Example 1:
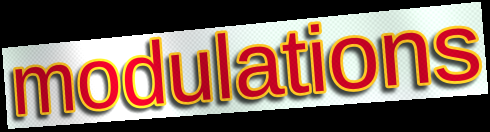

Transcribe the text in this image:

modulations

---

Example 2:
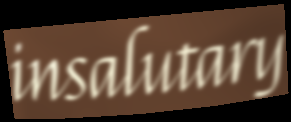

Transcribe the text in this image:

insalutary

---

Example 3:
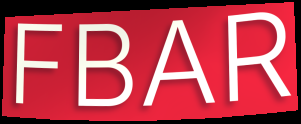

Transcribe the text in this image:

FBAR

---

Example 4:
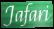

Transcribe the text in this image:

Jafari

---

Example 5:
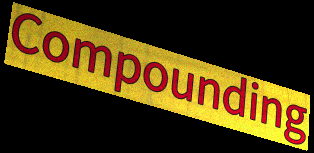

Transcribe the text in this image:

Compounding